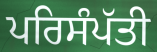
ਪਰਿਸੰਪੱਤੀ